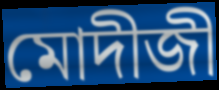
মোদীজী